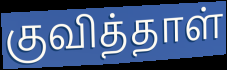
குவித்தாள்